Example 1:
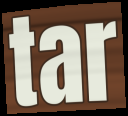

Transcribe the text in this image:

tar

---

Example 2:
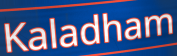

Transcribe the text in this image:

Kaladham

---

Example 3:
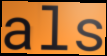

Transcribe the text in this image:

als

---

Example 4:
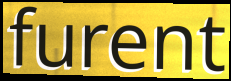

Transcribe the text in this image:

furent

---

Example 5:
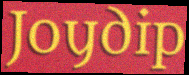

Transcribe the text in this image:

Joydip